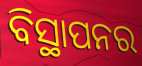
ବିସ୍ଥାପନର